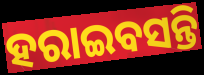
ହରାଇବସନ୍ତି